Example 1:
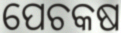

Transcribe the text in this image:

ପେଚକଷ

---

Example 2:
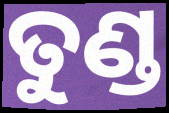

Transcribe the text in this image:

ତୁଣ୍ଡ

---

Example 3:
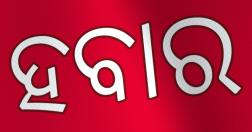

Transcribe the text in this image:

ହବାର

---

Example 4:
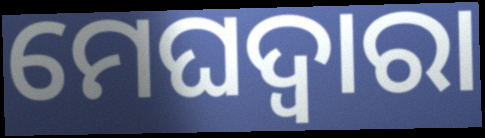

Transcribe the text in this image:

ମେଘଦ୍ୱାରା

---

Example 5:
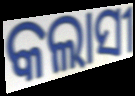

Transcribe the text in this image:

କଲାସୀ